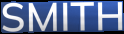
SMITH